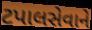
ટપાલસેવાને